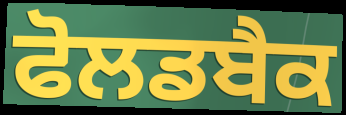
ਫੋਲਡਬੈਕ